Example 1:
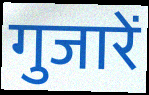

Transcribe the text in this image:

गुजारें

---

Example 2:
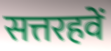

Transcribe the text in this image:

सत्तरहवें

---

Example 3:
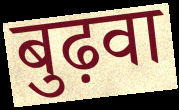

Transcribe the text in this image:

बुढ़वा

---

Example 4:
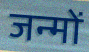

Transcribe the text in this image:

जन्मों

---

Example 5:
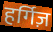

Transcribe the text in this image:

हर्गिज़